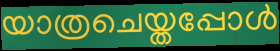
യാത്രചെയ്തപ്പോൾ